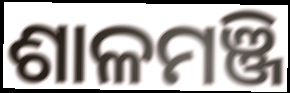
ଶାଳମଞ୍ଜି